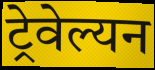
ट्रेवेल्यन